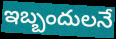
ఇబ్బందులనే